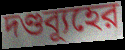
দণ্ডব্যূহের